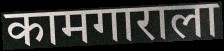
कामगाराला